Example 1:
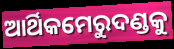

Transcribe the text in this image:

ଆର୍ଥିକମେରୁଦଣ୍ଡକୁ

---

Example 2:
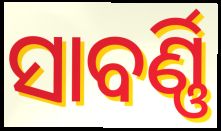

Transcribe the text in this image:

ସାବର୍ଣ୍ଣି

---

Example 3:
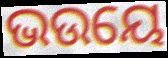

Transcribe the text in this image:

ଭଉୟେ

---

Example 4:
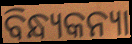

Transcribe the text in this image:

ବିନ୍ଧ୍ୟକନ୍ୟା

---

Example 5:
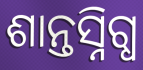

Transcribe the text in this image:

ଶାନ୍ତସ୍ନିଗ୍ଧ